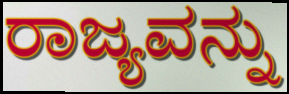
ರಾಜ್ಯವನ್ನು